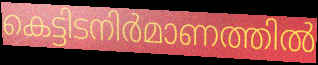
കെട്ടിടനിർമാണത്തിൽ